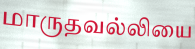
மாருதவல்லியை